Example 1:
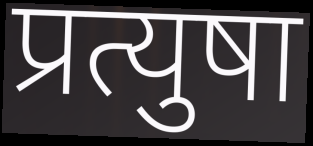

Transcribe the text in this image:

प्रत्युषा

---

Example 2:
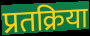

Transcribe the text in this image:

प्रतक्रिया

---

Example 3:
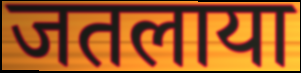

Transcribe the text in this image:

जतलाया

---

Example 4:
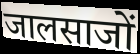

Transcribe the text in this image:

जालसाजों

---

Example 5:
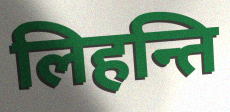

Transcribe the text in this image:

लिहन्ति